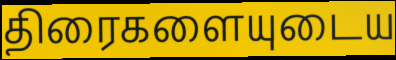
திரைகளையுடைய